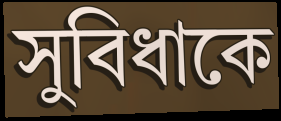
সুবিধাকে